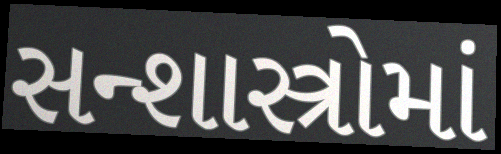
સન્શાસ્ત્રોમાં